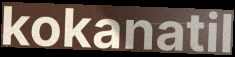
kokanatil